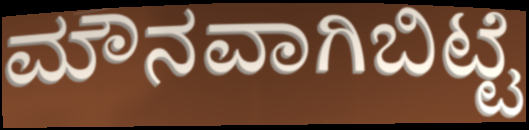
ಮೌನವಾಗಿಬಿಟ್ಟೆ